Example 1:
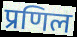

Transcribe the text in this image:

प्रणिल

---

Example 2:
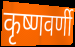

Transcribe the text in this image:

कृष्णवर्णी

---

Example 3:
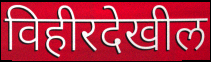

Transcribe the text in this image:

विहीरदेखील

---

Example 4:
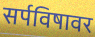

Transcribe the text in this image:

सर्पविषावर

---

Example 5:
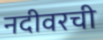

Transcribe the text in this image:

नदीवरची